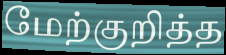
மேற்குறித்த